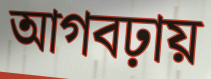
আগবঢ়ায়